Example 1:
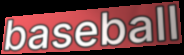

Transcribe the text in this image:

baseball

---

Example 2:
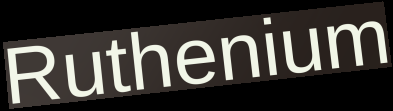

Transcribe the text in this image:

Ruthenium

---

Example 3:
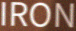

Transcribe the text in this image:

IRON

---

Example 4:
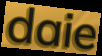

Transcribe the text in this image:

daie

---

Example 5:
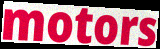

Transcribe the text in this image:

motors